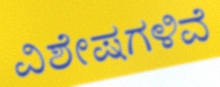
ವಿಶೇಷಗಳಿವೆ